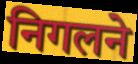
निगलने